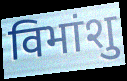
विभांशु